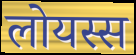
लोयस्स